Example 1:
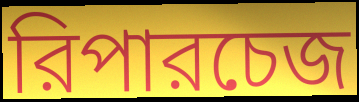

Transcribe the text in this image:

রিপারচেজ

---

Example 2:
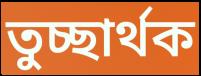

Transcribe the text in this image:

তুচ্ছার্থক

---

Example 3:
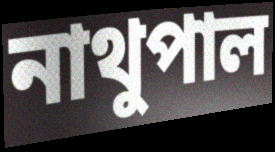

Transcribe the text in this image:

নাথুপাল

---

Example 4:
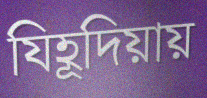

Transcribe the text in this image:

যিহূদিয়ায়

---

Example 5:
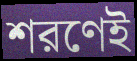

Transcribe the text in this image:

শরণেই